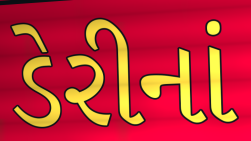
ડેરીનાં